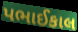
પભાઈકાલ